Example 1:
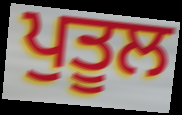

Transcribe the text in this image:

ਪੁਤੂਲ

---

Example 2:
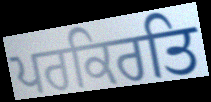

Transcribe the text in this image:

ਪਰਕਿਰਤਿ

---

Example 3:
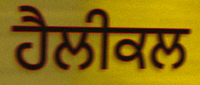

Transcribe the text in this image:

ਹੈਲੀਕਲ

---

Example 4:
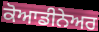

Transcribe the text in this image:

ਕੋਆਡੀਨੇਅਰ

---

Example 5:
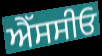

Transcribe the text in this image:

ਐੱਸਸੀਓ